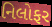
નિલોફર